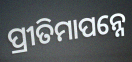
ପ୍ରୀତିମାପନ୍ନେ